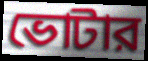
ভোটার